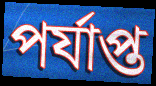
পর্যাপ্ত